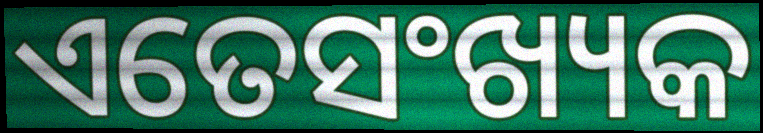
ଏତେସଂଖ୍ୟକ